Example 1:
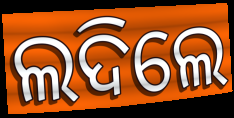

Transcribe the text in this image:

ଲଦିଲେ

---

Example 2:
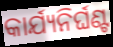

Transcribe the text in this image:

କାର୍ଯ୍ୟନିର୍ଘଣ୍ଟ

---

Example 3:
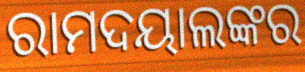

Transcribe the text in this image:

ରାମଦୟାଲଙ୍କର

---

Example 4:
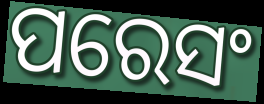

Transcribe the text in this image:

ପରେସଂ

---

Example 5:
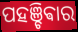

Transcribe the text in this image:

ପହଞ୍ଚିଵାର